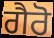
ਗੈਰੋ